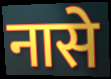
नासे